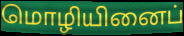
மொழியினைப்